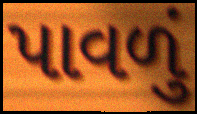
પાવળું